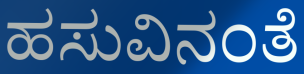
ಹಸುವಿನಂತೆ